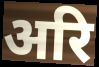
अरि